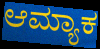
ಆಮ್ಯಾಕ